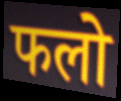
फलो